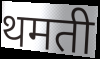
थमती